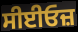
ਸੀਈਓਜ਼